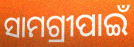
ସାମଗ୍ରୀପାଇଁ